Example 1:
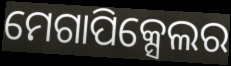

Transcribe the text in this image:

ମେଗାପିକ୍ସେଲର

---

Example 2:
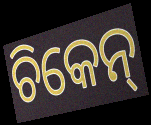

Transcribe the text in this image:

ଚିକେନ୍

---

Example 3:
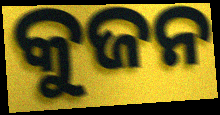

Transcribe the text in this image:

କୁଜନ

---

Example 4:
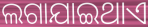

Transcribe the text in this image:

ଲଗାଯାଇଥାଏ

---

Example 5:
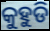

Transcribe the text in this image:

କୁହୁଡି